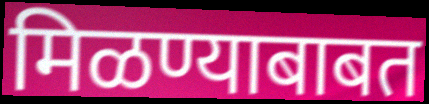
मिळण्याबाबत